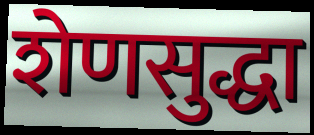
शेणसुद्धा